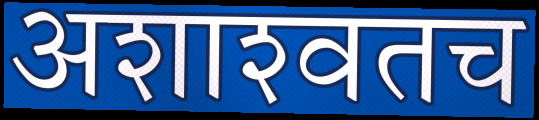
अशाश्वतच